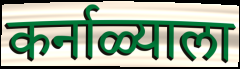
कर्नाळ्याला